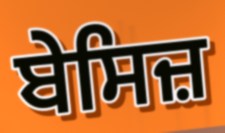
ਬੇਸਿਜ਼